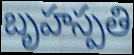
బృహస్పతి